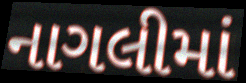
નાગલીમાં